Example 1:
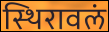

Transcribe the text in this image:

स्थिरावलं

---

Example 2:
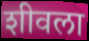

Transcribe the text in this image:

शीवला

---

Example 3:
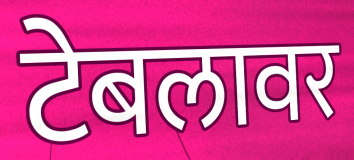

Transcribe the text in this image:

टेबलावर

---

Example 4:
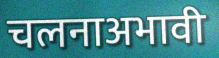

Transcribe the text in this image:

चलनाअभावी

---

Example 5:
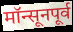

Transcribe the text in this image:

मॉन्सूनपूर्व